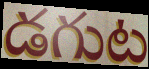
డగుట